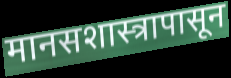
मानसशास्त्रापासून